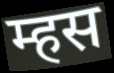
म्हस